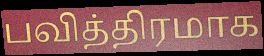
பவித்திரமாக